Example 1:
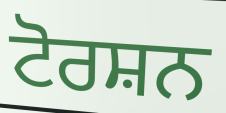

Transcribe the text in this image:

ਟੋਰਸ਼ਨ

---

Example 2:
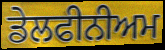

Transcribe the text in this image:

ਡੇਲਫੀਨੀਅਮ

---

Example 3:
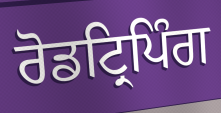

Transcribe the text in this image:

ਰੋਡਟ੍ਰਿਪਿੰਗ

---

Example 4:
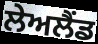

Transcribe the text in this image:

ਲੇਅਲੈਂਡ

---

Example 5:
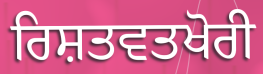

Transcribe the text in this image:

ਰਿਸ਼ਤਵਤਖੋਰੀ